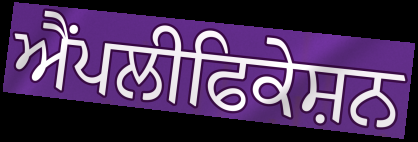
ਐਂਪਲੀਫਿਕੇਸ਼ਨ